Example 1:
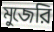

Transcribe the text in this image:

মুজেরি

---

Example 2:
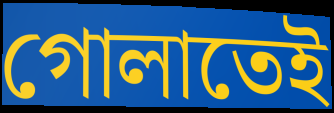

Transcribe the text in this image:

গোলাতেই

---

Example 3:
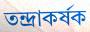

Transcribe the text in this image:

তন্দ্রাকর্ষক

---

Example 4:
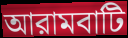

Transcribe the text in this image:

আরামবাটি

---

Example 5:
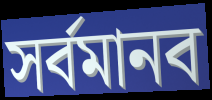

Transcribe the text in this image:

সর্বমানব